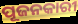
ପୂଜନକାରୀ